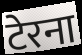
टेरना